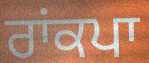
ਰਾਂਕਪਾ